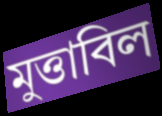
মুত্তাবিল